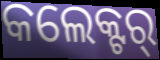
କଲେକ୍ଟର୍